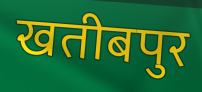
खतीबपुर